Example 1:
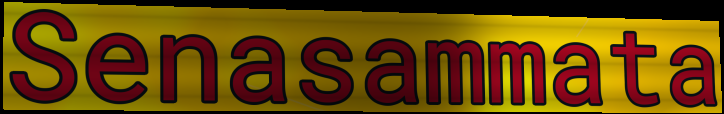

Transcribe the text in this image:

Senasammata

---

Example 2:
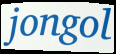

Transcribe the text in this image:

jongol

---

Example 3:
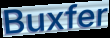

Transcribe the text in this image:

Buxfer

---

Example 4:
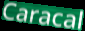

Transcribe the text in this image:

Caracal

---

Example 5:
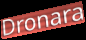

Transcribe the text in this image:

Dronara